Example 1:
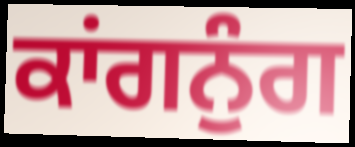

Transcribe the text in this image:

ਕਾਂਗਨੁੰਗ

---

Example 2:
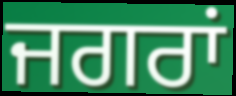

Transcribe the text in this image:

ਜਗਰਾਂ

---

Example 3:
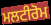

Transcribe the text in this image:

ਮਲਟੀਰੋਮ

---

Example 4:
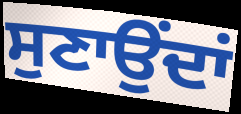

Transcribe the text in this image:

ਸੁਣਾਉਂਦਾਂ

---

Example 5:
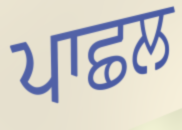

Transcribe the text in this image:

ਪਾਛਲ